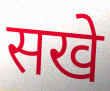
सखे